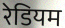
रेडियम